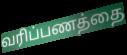
வரிப்பணத்தை